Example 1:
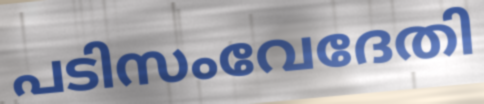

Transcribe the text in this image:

പടിസംവേദേതി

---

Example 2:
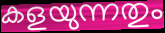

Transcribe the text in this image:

കളയുന്നതും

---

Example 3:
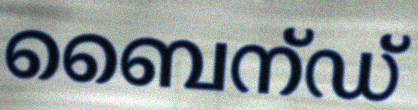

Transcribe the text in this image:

ബൈന്ഡ്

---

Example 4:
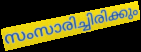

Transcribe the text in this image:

സംസാരിച്ചിരിക്കും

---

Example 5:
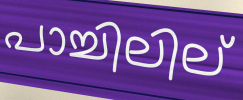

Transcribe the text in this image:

പാച്ചിലില്